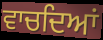
ਵਾਚਦਿਆਂ